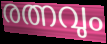
രത്നവും